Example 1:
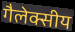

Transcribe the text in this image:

गैलेक्सीय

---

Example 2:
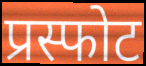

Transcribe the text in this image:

प्रस्फोट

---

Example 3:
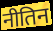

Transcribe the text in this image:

नीतिन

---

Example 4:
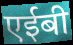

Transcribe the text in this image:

एईबी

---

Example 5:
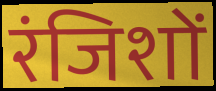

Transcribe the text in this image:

रंजिशों